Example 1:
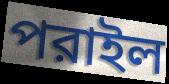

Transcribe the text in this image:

পরাইল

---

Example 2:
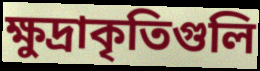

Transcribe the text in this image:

ক্ষুদ্রাকৃতিগুলি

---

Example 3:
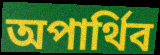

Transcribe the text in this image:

অপার্থিব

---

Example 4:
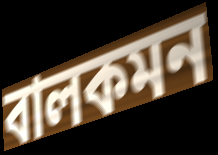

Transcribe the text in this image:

বালকমন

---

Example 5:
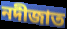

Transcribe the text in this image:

নদীজাত